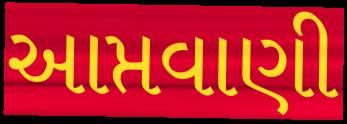
આપ્તવાણી